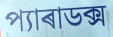
প্যাৰাডক্স